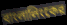
বাংলালিংকের